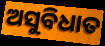
ଅସୁବିଧାତ